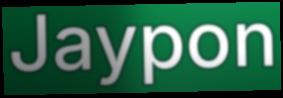
Jaypon